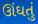
ઊંઘતું